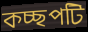
কচ্ছপটি